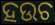
ହଉଚ